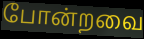
போன்றவை